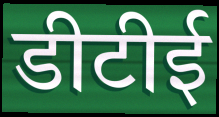
डीटीई